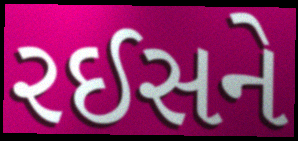
રઈસને